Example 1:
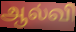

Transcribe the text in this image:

ஆல்வி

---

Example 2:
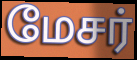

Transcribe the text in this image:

மேசர்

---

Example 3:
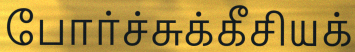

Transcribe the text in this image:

போர்ச்சுக்கீசியக்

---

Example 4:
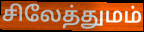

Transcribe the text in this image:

சிலேத்துமம்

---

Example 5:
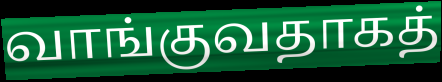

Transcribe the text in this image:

வாங்குவதாகத்